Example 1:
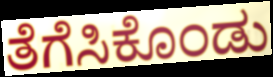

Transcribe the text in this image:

ತೆಗೆಸಿಕೊಂಡು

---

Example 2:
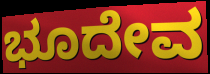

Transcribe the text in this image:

ಭೂದೇವ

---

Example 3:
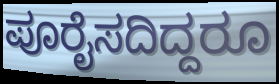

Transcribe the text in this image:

ಪೂರೈಸದಿದ್ದರೂ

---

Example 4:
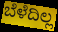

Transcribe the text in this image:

ಬೆಳೆದಿಲ್ಲ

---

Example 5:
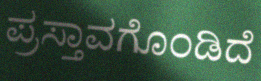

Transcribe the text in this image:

ಪ್ರಸ್ತಾವಗೊಂಡಿದೆ